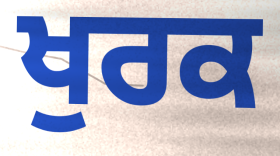
ਖੁਰਕ